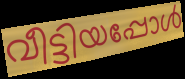
വീട്ടിയപ്പോൾ